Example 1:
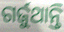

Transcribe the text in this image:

ଗର୍ଜୁଥାନ୍ତି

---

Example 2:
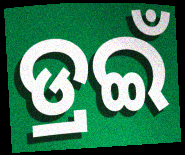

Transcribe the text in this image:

ଡ୍ରଇଁ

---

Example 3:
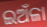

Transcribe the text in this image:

ଇଅଁଳା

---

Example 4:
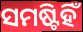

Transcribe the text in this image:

ସମଷ୍ଟିହିଁ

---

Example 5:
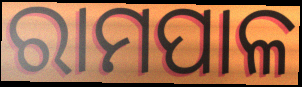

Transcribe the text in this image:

ରାମପାଳ